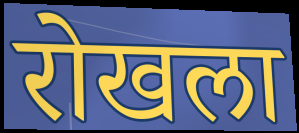
रोखला